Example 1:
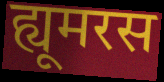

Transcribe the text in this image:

ह्यूमरस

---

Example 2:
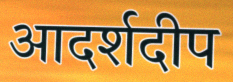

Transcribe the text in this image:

आदर्शदीप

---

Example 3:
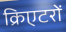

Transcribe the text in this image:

क्रिएटरों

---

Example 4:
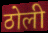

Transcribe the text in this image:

ठोली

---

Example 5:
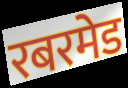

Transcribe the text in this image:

रबरमेड